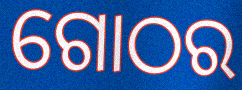
ଗୋଠର